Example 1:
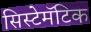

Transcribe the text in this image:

सिस्टेमॅटिक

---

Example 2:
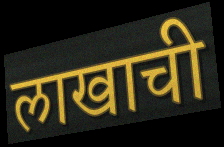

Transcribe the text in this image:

लाखाची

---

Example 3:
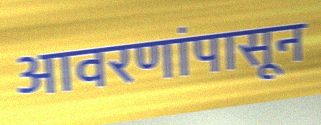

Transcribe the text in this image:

आवरणांपासून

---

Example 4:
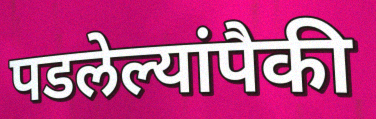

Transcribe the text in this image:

पडलेल्यांपैकी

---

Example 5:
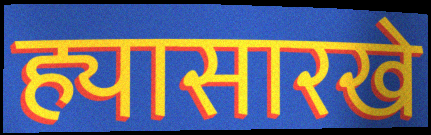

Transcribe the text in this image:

ह्यासारखे